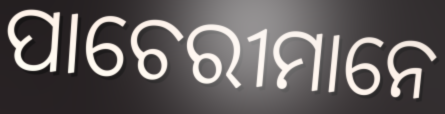
ପାଚେରୀମାନେ